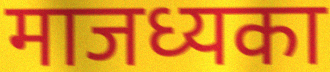
माजध्यका